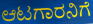
ಆಟಗಾರನಿಗೆ